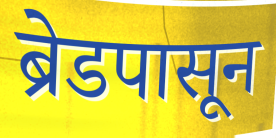
ब्रेडपासून